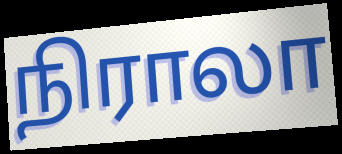
நிராலா